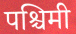
पश्चिमी